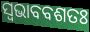
ସ୍ୱଭାବବଶତଃ